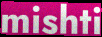
mishti